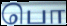
பொ